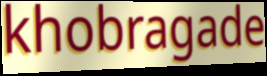
khobragade